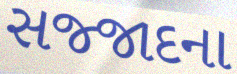
સજ્જાદના